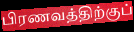
பிரணவத்திற்குப்